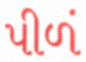
પીળં